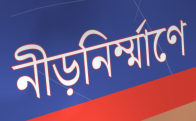
নীড়নির্ম্মাণে